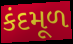
કંદમૂળ